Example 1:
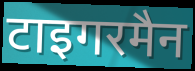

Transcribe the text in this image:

टाइगरमैन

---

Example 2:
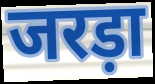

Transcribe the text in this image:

जरड़ा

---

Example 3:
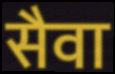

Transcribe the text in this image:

सैवा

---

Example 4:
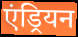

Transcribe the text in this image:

एंड्रियन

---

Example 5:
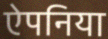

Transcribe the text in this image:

ऐपनिया